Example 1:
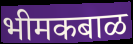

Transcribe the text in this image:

भीमकबाळ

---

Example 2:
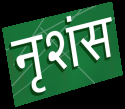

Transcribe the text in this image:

नृशंस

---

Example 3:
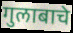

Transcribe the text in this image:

गुलाबाचे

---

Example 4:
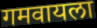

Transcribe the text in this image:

गमवायला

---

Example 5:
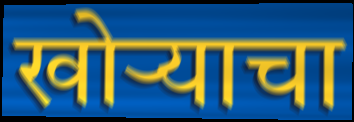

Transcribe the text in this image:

खोऱ्याचा